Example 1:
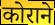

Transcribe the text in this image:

कोराने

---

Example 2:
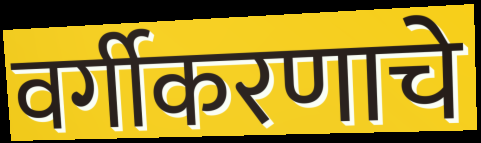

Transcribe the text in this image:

वर्गीकरणाचे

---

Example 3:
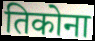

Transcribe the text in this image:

तिकोना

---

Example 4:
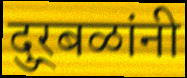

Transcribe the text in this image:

दुर्बळांनी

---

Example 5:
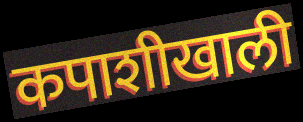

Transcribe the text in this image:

कपाशीखाली